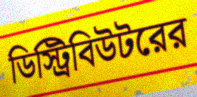
ডিস্ট্রিবিউটরের